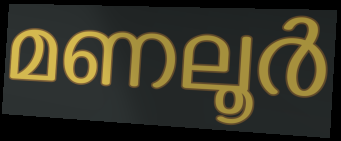
മണലൂർ